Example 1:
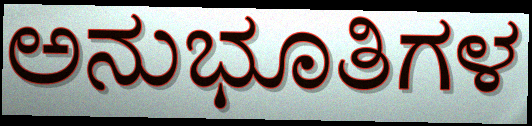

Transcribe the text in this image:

ಅನುಭೂತಿಗಳ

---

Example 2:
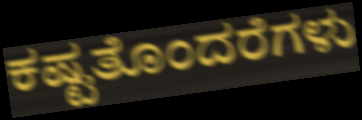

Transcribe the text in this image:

ಕಷ್ಟತೊಂದರೆಗಳು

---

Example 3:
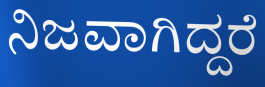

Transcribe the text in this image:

ನಿಜವಾಗಿದ್ದರೆ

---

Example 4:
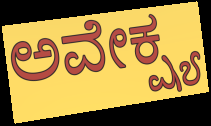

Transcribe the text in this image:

ಅವೇಕ್ಷ್ಯ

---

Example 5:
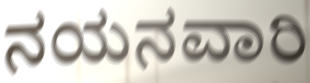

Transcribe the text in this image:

ನಯನವಾರಿ